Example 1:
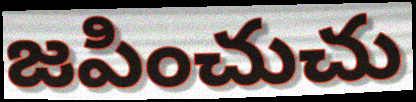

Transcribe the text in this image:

జపించుచు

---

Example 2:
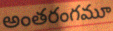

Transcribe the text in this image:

అంతరంగమూ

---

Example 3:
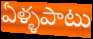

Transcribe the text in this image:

ఏళ్ళపాటు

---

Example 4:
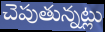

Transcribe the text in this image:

చెపుతున్నట్లు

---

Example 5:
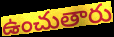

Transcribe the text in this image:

ఉంచుతారు